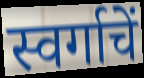
स्वर्गाचें